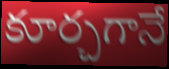
కూర్చగానే